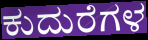
ಕುದುರೆಗಳ